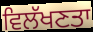
ਵਿਲੱਖਣਤਾ